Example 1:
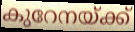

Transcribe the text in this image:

കുറേനയ്ക്ക്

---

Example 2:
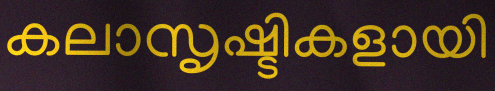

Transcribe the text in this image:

കലാസൃഷ്ടികളായി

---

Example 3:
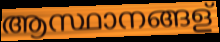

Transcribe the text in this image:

ആസ്ഥാനങ്ങള്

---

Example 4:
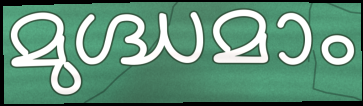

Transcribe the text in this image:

മുഗ്ദ്ധമാം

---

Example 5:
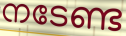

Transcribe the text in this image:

നടേണ്ട